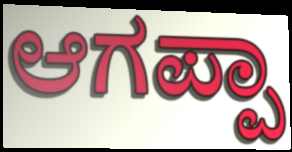
ಆಗಪ್ಪಾ